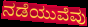
ನಡೆಯುವೆವು